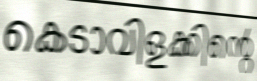
കെടാവിളക്കിന്റെ